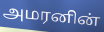
அமரனின்